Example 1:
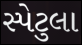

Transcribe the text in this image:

સ્પેટુલા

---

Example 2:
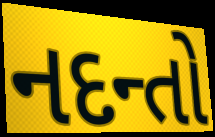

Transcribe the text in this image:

નદન્તો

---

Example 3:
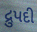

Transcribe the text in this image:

દ્રુપદી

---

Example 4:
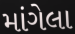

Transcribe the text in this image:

માંગેલા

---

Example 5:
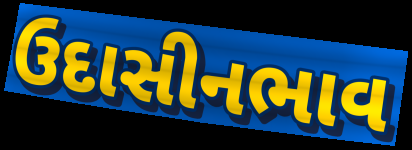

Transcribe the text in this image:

ઉદાસીનભાવ